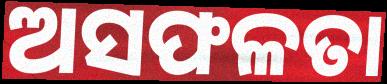
ଅସଫଳତା